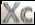
Xc